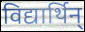
विद्यार्थिन्